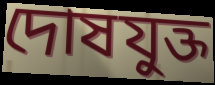
দোষযুক্ত